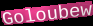
Goloubew